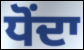
ਧੋਂਦਾ